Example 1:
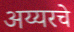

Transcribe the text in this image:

अय्यरचे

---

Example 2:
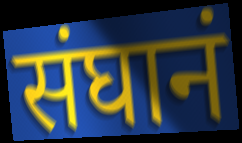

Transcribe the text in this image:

संघानं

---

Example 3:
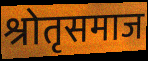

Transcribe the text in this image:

श्रोतृसमाज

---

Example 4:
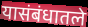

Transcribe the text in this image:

यासंबंधातले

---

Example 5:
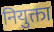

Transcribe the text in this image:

नियुक्ता